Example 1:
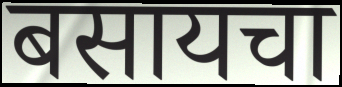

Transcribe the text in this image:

बसायचा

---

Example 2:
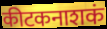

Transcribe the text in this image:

कीटकनाशकं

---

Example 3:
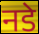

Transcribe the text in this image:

नडे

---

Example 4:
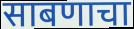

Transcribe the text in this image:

साबणाचा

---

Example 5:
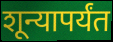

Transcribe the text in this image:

शून्यापर्यंत